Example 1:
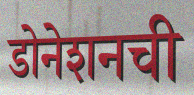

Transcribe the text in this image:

डोनेशनची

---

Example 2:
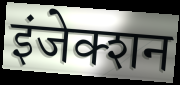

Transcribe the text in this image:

इंजेक्शन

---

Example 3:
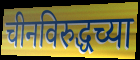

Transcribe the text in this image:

चीनविरुद्धच्या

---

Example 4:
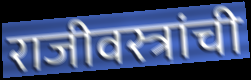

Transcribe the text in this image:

राजीवस्त्रांची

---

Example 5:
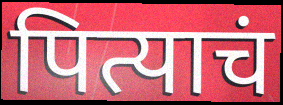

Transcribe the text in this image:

पित्याचं